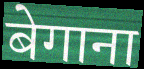
बेगाना